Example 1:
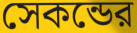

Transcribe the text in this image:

সেকন্ডের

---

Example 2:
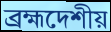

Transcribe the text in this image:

ব্রহ্মদেশীয়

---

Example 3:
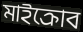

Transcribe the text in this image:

মাইক্রোব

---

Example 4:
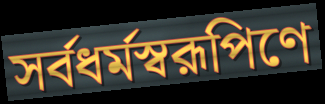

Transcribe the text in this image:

সর্বধর্মস্বরূপিণে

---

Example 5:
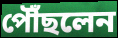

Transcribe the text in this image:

পৌঁছলেন